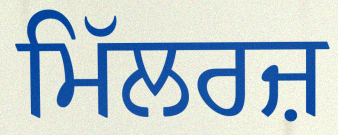
ਮਿੱਲਰਜ਼